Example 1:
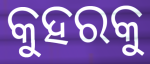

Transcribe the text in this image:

କୁହରକୁ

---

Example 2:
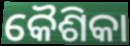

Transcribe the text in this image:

କୈଶିକା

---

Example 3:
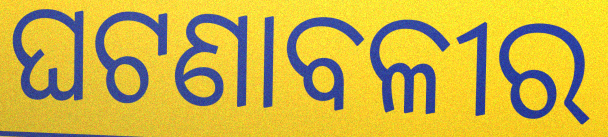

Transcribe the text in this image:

ଘଟଣାବଳୀର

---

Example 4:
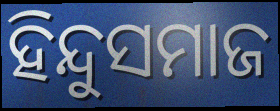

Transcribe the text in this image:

ହିନ୍ଦୁସମାଜ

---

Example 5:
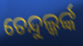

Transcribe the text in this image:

ତେନ୍ଦୁଲ୍କର୍ଙ୍କ